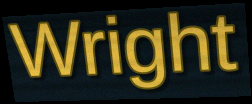
Wright